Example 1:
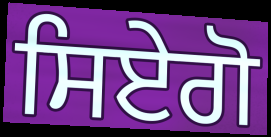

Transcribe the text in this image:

ਸਿਏਗੋ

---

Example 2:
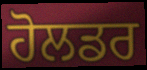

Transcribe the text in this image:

ਹੋਲਡਰ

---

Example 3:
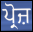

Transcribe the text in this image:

ਪ੍ਰੋਜ਼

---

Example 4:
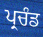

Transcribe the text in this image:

ਪ੍ਰਚੰਡ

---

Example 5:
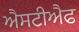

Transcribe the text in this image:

ਐਸਟੀਐਫ